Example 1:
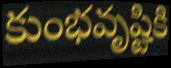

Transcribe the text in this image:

కుంభవృష్టికి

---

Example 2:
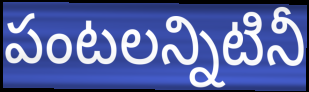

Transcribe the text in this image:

పంటలన్నిటినీ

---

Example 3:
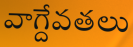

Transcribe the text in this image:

వాగ్దేవతలు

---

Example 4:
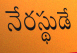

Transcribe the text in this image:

నేరస్థుడే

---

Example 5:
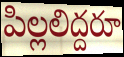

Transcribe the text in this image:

పిల్లలిద్దరూ